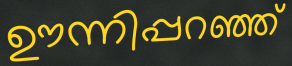
ഊന്നിപ്പറഞ്ഞ്